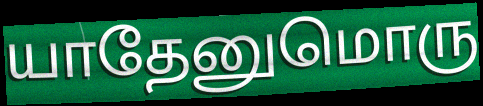
யாதேனுமொரு